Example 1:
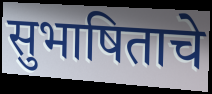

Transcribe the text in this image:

सुभाषिताचे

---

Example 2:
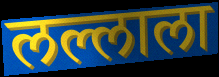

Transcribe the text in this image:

लल्लाला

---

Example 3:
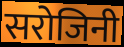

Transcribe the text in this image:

सरोजिनी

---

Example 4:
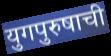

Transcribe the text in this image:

युगपुरुषाची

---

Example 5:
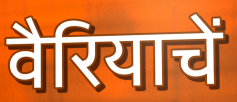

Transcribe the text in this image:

वैरियाचें